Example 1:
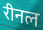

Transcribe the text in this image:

रीनल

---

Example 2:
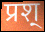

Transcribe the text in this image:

प्रश्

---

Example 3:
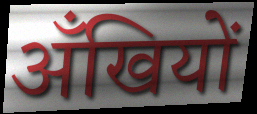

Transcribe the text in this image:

अँखियों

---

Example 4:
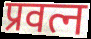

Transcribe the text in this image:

प्रवत्न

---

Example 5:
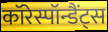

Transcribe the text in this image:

कॉरेस्पॉन्डैंट्स